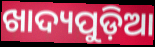
ଖାଦ୍ୟପୁଡ଼ିଆ